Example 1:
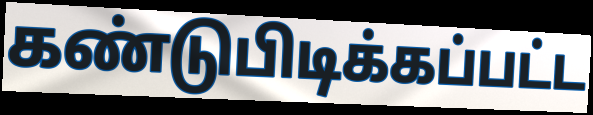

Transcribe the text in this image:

கண்டுபிடிக்கப்பட்ட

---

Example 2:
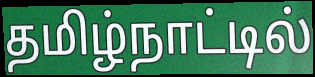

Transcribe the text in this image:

தமிழ்நாட்டில்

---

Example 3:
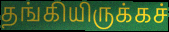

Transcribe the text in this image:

தங்கியிருக்கச்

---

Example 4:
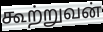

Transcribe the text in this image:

கூற்றுவன்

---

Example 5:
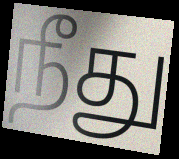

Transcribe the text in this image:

நீது